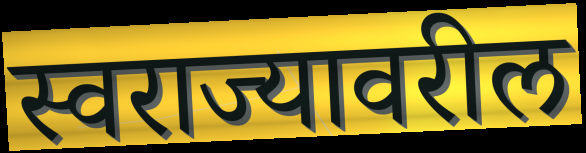
स्वराज्यावरील